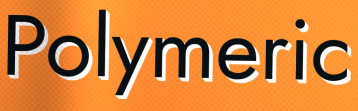
Polymeric